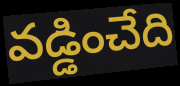
వడ్డించేది